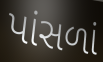
પાંસળાં